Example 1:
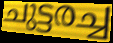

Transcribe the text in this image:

ചുട്ടരച്ച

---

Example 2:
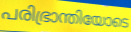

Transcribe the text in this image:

പരിഭ്രാന്തിയോടെ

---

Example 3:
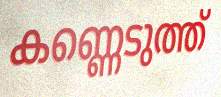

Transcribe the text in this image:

കണ്ണെടുത്ത്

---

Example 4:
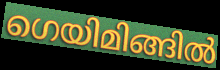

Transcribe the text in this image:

ഗെയിമിങ്ങിൽ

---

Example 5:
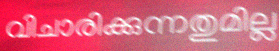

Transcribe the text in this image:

വിചാരിക്കുന്നതുമില്ല